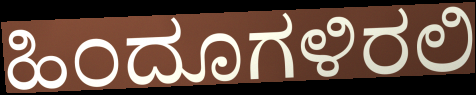
ಹಿಂದೂಗಳಿರಲಿ